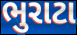
ભુરાટા